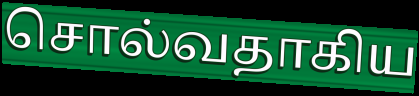
சொல்வதாகிய